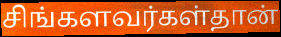
சிங்களவர்கள்தான்